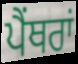
ਪੈਂਥਰਾਂ